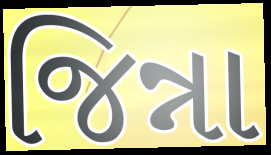
જિન્ના